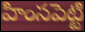
హింసపెట్టి